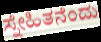
ಸ್ನೇಹಿತನೆಂದು